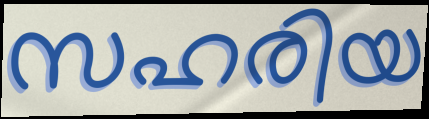
സഹരിയ